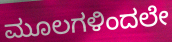
ಮೂಲಗಳಿಂದಲೇ